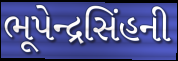
ભૂપેન્દ્રસિંહની